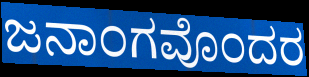
ಜನಾಂಗವೊಂದರ